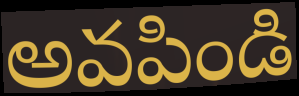
అవపిండి